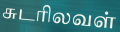
சுடரிலவள்